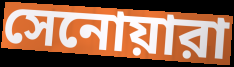
সেনোয়ারা